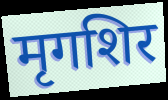
मृगशिर